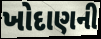
ખોદાણની